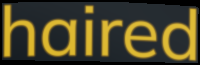
haired